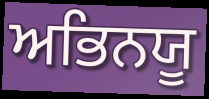
ਅਭਿਨਯੂ